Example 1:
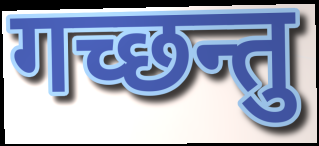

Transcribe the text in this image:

गच्छन्तु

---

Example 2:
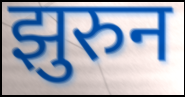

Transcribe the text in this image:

झुरुन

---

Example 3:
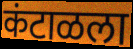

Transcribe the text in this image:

कंटाळला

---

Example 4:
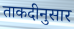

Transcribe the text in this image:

ताकदीनुसार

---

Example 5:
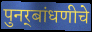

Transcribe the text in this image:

पुनर्बांधणीचे